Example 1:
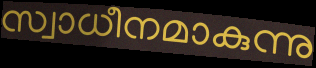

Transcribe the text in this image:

സ്വാധീനമാകുന്നു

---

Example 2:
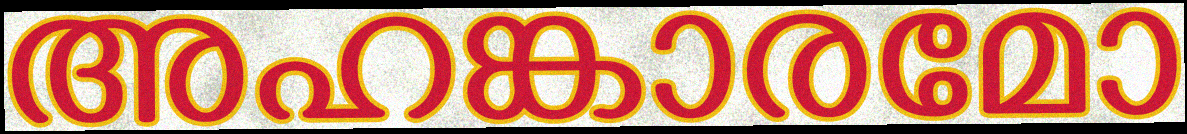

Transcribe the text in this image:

അഹങ്കാരമോ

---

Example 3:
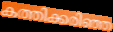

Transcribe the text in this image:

കത്തിക്കരിഞ്ഞ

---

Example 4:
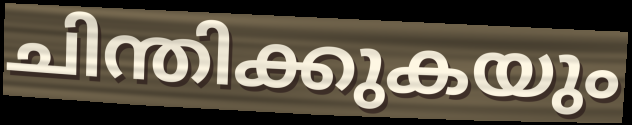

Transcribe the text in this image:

ചിന്തിക്കുകയും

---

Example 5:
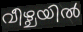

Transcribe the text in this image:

വീഴ്ചയിൽ